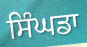
ਸਿੰਘਡਾ